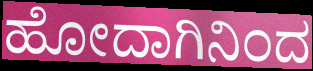
ಹೋದಾಗಿನಿಂದ